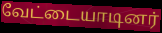
வேட்டையாடினர்